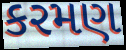
કરમણ